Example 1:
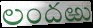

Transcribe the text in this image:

లందఱు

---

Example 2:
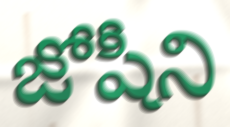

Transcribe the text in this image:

జోషీని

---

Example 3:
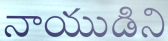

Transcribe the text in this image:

నాయుడిని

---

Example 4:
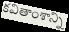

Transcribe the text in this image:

కవితాంశాన్ని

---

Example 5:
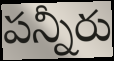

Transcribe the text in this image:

పన్నీరు